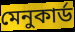
মেনুকার্ড